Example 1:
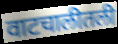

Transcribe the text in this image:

वाटचालीतली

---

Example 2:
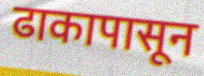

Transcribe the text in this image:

ढाकापासून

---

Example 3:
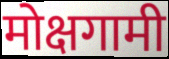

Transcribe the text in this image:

मोक्षगामी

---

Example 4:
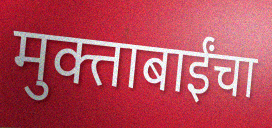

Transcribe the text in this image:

मुक्ताबाईंचा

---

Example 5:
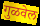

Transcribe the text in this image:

गुळवेल